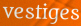
vestiges